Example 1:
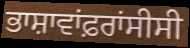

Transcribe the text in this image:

ਭਾਸ਼ਾਵਾਂਫ਼ਰਾਂਸੀਸੀ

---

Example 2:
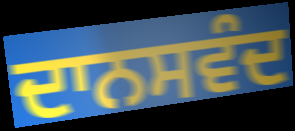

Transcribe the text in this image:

ਦਾਨਸਵੰਦ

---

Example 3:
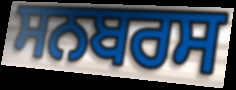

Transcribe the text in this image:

ਸਨਬਰਸ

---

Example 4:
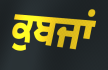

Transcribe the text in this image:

ਕੁਬਜਾਂ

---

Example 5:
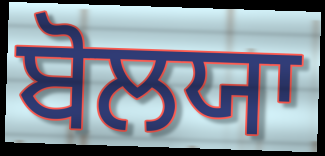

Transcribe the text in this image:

ਬੋਲਯਾ